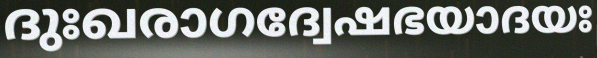
ദുഃഖരാഗദ്വേഷഭയാദയഃ